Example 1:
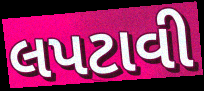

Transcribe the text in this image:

લપટાવી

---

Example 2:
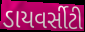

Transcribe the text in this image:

ડાયવર્સીટી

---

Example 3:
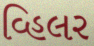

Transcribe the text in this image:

વ્હિલર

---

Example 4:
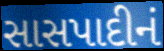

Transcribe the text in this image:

સાસપાદીનં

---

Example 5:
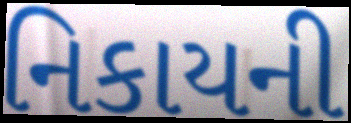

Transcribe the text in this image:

નિકાયની